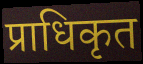
प्राधिकृत